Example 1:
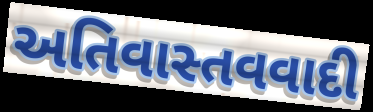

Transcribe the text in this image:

અતિવાસ્તવવાદી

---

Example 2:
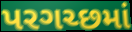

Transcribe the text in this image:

પરગચ્છમાં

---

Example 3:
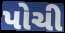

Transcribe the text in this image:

પોચી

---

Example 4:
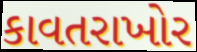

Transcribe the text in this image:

કાવતરાખોર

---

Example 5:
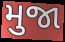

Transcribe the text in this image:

મુજા